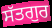
ਸੱਤਗੁਰ